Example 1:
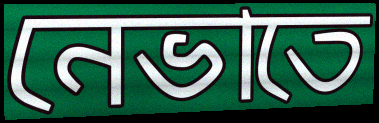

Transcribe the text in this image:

নেভাতে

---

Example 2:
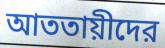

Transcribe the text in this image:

আততায়ীদের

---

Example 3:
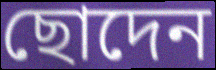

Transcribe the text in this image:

ছোদেন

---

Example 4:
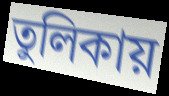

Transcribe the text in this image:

তুলিকায়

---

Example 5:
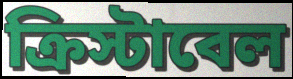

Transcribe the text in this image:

ক্রিস্টাবেল